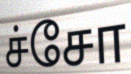
ச்சோ